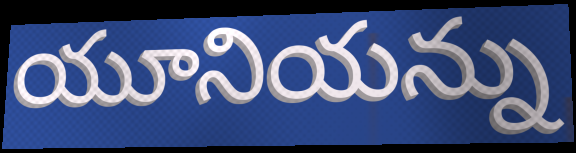
యూనియన్ను